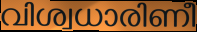
വിശ്വധാരിണീ